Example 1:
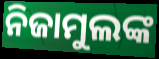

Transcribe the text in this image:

ନିଜାମୁଲଙ୍କ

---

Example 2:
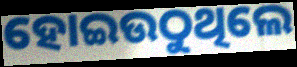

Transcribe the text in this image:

ହୋଇଉଠୁଥିଲେ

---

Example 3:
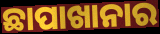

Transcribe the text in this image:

ଛାପାଖାନାର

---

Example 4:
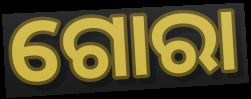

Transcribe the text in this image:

ଗୋରା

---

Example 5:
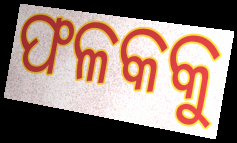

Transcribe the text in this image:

ଫଳକକୁ